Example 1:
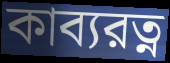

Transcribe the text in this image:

কাব্যরত্ন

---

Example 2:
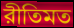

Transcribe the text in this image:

রীতিমত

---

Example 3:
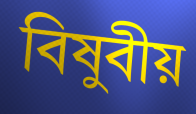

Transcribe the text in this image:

বিষুবীয়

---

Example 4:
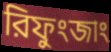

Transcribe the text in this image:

রিফুংজাং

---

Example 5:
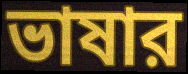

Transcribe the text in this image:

ভাষার